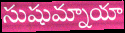
సుషుమ్నాయా